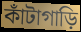
কাঁটাগাড়ি